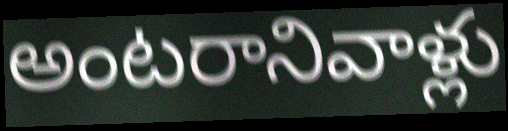
అంటరానివాళ్లు